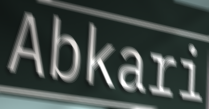
Abkari